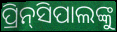
ପ୍ରିନ୍‌ସିପାଲଙ୍କୁ